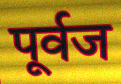
पूर्वज